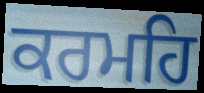
ਕਰਮਹਿ